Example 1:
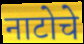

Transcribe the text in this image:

नाटोचे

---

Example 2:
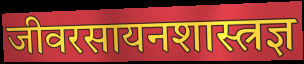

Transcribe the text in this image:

जीवरसायनशास्त्रज्ञ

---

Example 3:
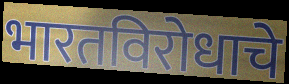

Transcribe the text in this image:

भारतविरोधाचे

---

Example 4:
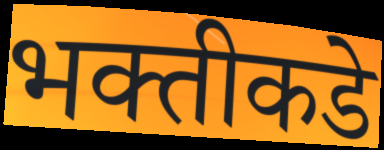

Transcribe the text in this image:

भक्तीकडे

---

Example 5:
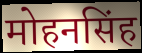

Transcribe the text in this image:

मोहनसिंह